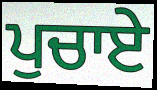
ਪੁਚਾਏ